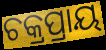
ଚକ୍ରପ୍ରାୟ